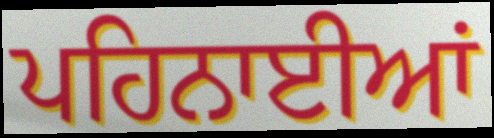
ਪਹਿਨਾਈਆਂ